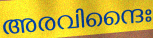
അരവിന്ദൈഃ